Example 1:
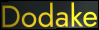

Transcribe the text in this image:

Dodake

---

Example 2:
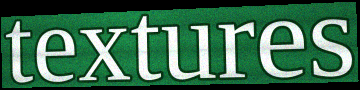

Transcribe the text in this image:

textures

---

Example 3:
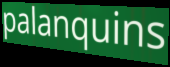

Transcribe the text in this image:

palanquins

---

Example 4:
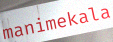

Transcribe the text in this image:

manimekala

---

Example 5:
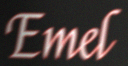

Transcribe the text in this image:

Emel